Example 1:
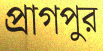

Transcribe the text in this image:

প্রাগপুর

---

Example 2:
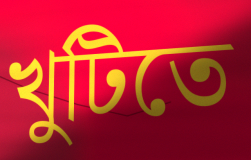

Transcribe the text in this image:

খুটিতে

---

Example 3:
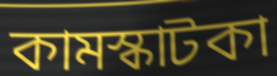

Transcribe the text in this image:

কামস্কাটকা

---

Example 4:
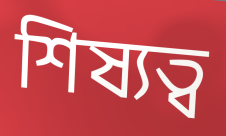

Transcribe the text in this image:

শিষ্যত্ব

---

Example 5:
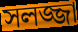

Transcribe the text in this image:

সলজ্জা